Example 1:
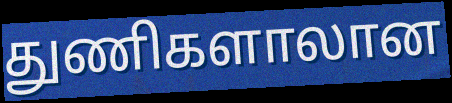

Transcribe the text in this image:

துணிகளாலான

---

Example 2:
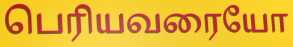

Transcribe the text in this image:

பெரியவரையோ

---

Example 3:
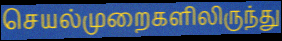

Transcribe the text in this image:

செயல்முறைகளிலிருந்து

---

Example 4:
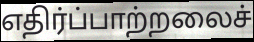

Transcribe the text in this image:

எதிர்ப்பாற்றலைச்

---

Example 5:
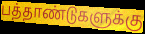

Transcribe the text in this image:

பத்தாண்டுகளுக்கு